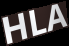
HLA